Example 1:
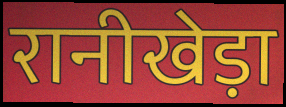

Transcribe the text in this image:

रानीखेड़ा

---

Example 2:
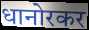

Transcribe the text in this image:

धानोरकर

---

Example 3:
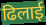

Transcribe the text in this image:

ढिलाई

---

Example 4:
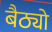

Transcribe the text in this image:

बैठ्यो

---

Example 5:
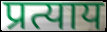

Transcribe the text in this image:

प्रत्याय